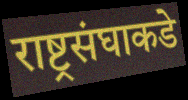
राष्ट्रसंघाकडे